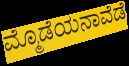
ಮ್ಮೊಡೆಯನಾವೆಡೆ